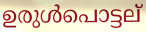
ഉരുൾപൊട്ടല്